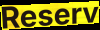
Reserv